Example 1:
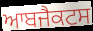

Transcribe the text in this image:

ਆਬਜੈਕਟਸ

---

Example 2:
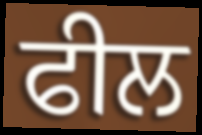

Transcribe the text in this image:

ਫੀਲ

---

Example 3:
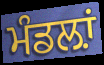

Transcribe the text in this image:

ਮੰਡਲ਼ਾਂ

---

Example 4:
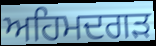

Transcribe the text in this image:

ਅਹਿਮਦਗੜ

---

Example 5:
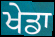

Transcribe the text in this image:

ਖੇਡਾ